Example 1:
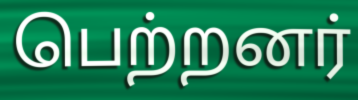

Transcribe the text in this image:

பெற்றனர்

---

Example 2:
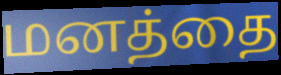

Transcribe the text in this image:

மனத்தை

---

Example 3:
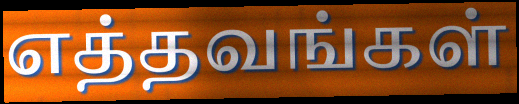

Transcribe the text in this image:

எத்தவங்கள்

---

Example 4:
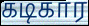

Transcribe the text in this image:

கடிகார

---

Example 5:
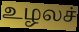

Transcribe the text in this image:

உழலச்